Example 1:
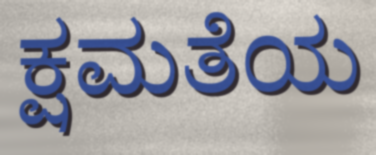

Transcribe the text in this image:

ಕ್ಷಮತೆಯ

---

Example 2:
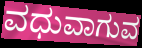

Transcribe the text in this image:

ವಧುವಾಗುವ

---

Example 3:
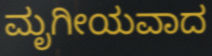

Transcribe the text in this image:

ಮೃಗೀಯವಾದ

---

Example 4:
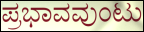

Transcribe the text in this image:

ಪ್ರಭಾವವುಂಟು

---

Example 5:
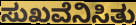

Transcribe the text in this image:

ಸುಖವೆನಿಸಿತು